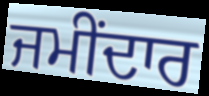
ਜਮੀਂਦਾਰ